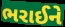
ભરાઈને